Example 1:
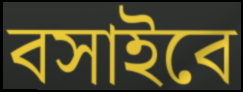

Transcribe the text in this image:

বসাইবে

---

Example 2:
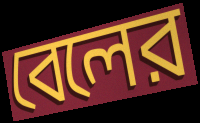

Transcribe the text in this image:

বেলের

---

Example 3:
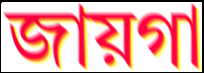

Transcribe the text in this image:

জায়গা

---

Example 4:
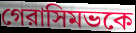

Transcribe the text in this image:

গেরাসিমভকে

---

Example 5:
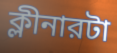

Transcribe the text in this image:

ক্লীনারটা